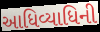
આધિવ્યાધિની